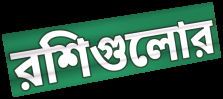
রশিগুলোর